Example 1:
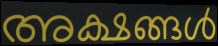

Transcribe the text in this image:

അക്ഷങ്ങൾ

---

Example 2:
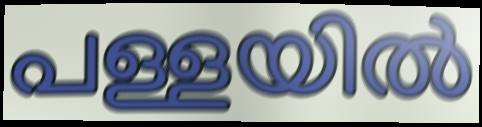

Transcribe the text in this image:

പള്ളയിൽ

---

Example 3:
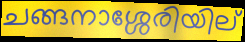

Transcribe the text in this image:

ചങ്ങനാശ്ശേരിയില്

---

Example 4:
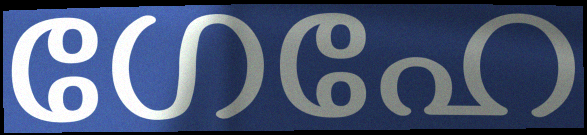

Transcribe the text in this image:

ഗേഹേ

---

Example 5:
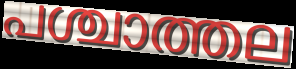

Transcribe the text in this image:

പശ്ചാത്തല